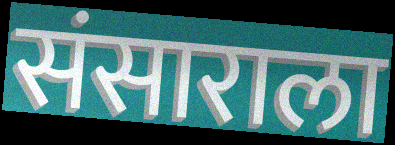
संसाराला